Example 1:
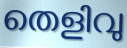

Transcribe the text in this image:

തെളിവു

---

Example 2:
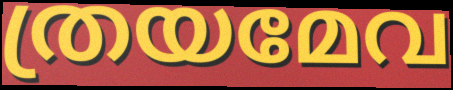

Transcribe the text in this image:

ത്രയമേവ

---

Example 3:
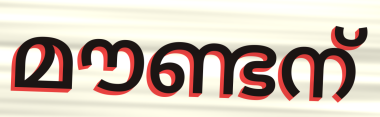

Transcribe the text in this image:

മൗണ്ടന്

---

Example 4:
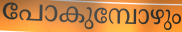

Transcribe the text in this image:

പോകുമ്പോഴും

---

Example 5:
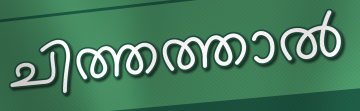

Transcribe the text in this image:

ചിത്തത്താൽ